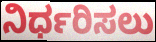
ನಿರ್ಧರಿಸಲು